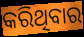
କରିଥିବାର